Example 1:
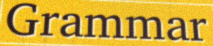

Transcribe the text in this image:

Grammar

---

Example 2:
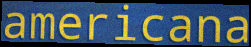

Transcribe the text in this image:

americana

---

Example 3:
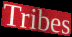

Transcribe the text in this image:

Tribes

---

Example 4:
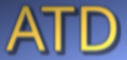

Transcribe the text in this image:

ATD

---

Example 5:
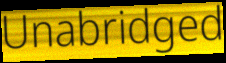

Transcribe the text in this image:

Unabridged